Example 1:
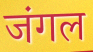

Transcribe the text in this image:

जंगल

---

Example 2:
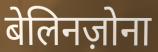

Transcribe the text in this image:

बेलिनज़ोना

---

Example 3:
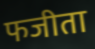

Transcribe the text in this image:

फजीता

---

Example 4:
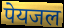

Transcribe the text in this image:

पेयजल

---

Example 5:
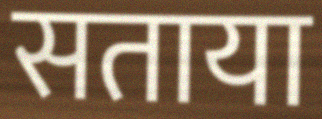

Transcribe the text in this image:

सताया